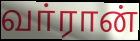
வர்ரான்